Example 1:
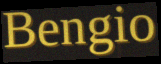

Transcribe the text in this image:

Bengio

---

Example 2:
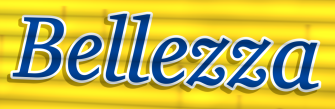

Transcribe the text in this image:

Bellezza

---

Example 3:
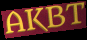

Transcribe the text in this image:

AKBT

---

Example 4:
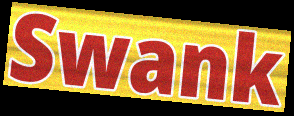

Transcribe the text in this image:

Swank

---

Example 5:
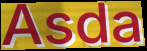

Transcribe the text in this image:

Asda